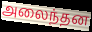
அலைந்தன